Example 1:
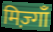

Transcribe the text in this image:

मिज़्गाँ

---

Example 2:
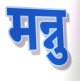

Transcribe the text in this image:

मन्नु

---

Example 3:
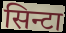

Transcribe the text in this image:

सिन्टा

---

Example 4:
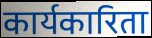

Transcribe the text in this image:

कार्यकारिता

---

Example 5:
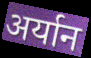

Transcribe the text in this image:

अर्यान